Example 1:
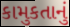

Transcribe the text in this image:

કામુકતાનું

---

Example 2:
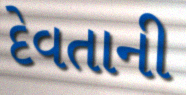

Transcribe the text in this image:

દેવતાની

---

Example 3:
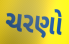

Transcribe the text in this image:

ચરણો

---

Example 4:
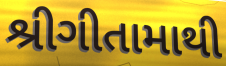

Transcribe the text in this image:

શ્રીગીતામાથી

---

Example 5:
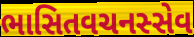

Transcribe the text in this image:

ભાસિતવચનસ્સેવ